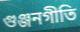
গুঞ্জনগীতি